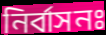
নির্বাসনঃ